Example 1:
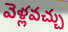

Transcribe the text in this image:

వెళ్లవచ్చు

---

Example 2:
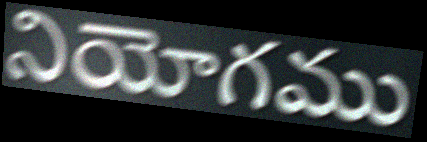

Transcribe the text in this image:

నియోగము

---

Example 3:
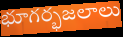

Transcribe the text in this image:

భూగర్భజలాలు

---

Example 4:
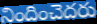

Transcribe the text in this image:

నిందించెదరు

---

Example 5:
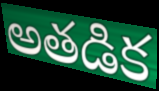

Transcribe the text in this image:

అతడిక